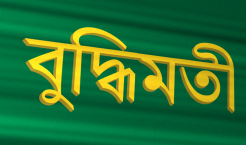
বুদ্ধিমতী